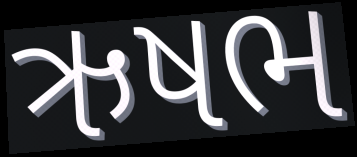
ઋષભ